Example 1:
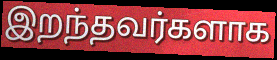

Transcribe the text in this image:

இறந்தவர்களாக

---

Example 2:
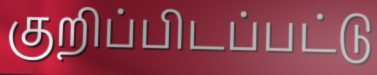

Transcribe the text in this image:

குறிப்பிடப்பட்டு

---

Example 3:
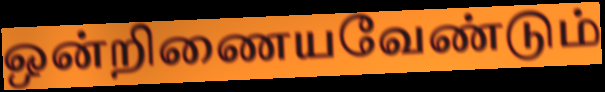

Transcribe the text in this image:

ஒன்றிணையவேண்டும்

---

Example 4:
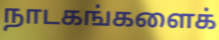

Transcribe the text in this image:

நாடகங்களைக்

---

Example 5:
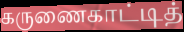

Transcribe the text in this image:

கருணைகாட்டித்